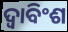
ଦ୍ୱାବିଂଶ